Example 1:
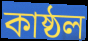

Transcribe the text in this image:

কাষ্ঠল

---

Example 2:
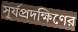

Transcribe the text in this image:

সূর্যপ্রদক্ষিণের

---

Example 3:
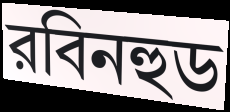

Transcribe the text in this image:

রবিনহুড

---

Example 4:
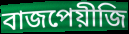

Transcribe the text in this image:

বাজপেয়ীজি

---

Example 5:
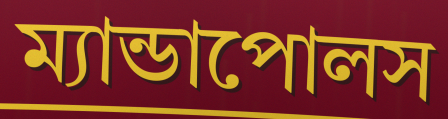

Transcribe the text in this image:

ম্যান্ডাপোলস